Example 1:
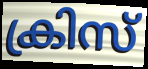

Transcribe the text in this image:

ക്രിസ്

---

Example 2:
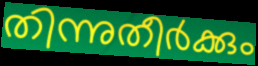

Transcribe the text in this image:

തിന്നുതീർക്കും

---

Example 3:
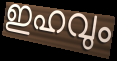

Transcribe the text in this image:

ഇഹവും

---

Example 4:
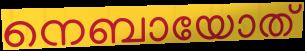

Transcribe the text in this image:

നെബായോത്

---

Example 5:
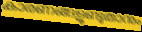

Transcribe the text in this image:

കാരണങ്ങളുണ്ടുതാനും